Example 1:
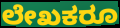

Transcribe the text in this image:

ಲೇಖಕರೂ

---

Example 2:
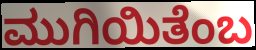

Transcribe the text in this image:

ಮುಗಿಯಿತೆಂಬ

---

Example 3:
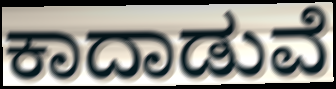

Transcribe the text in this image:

ಕಾದಾಡುವೆ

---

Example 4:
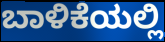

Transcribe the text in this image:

ಬಾಳಿಕೆಯಲ್ಲಿ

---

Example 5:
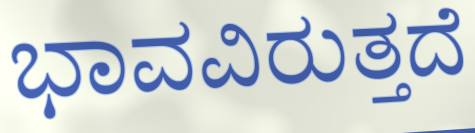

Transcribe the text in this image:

ಭಾವವಿರುತ್ತದೆ